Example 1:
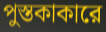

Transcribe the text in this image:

পুস্তকাকারে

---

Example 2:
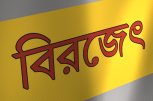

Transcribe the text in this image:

বিরজেৎ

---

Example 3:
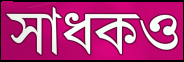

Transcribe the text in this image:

সাধকও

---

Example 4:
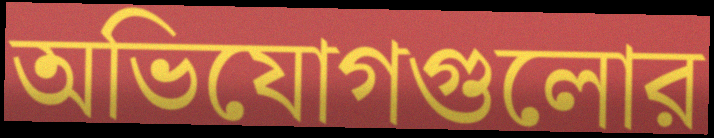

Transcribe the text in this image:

অভিযোগগুলোর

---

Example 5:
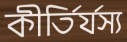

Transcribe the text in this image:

কীর্তির্যস্য